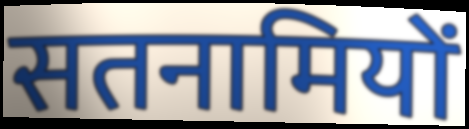
सतनामियों